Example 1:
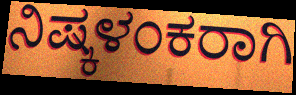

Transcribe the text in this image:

ನಿಷ್ಕಳಂಕರಾಗಿ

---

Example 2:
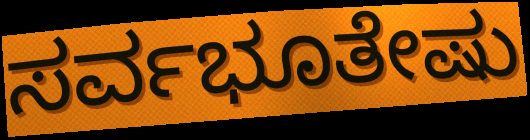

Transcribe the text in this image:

ಸರ್ವಭೂತೇಷು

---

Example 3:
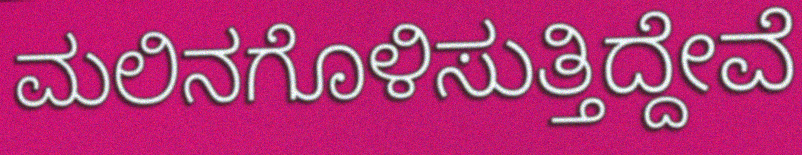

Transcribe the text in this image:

ಮಲಿನಗೊಳಿಸುತ್ತಿದ್ದೇವೆ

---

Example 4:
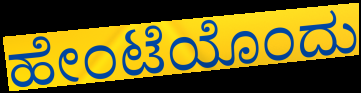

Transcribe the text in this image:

ಹೇಂಟೆಯೊಂದು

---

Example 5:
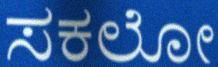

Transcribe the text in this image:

ಸಕಲೋ